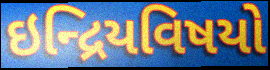
ઇન્દ્રિયવિષયો